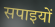
सपाइयों